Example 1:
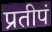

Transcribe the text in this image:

प्रतीपं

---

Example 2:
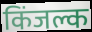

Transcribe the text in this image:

किंजल्क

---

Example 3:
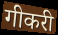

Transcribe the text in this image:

गीकरी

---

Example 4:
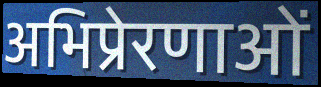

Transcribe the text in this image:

अभिप्रेरणाओं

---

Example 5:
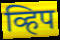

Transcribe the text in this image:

व्हिप